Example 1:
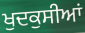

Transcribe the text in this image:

ਖੁਦਕੁਸੀਆਂ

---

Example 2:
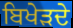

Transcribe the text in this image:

ਬਿਖੇੜਦੇ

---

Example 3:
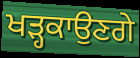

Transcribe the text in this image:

ਖੜ੍ਹਕਾਉਣਗੇ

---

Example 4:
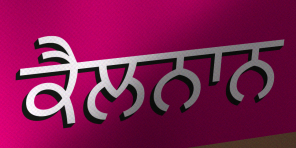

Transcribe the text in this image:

ਕੈਲਨਾਨ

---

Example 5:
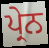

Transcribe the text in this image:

ਪ੍ਰੇਨ